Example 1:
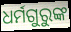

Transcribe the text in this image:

ଧର୍ମଗୁରୁଙ୍କ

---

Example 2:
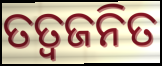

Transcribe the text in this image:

ତତ୍ଵଜନିତ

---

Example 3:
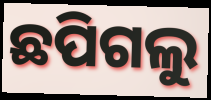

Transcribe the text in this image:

ଛପିଗଲୁ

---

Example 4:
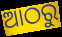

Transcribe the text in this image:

ଆଠରୁ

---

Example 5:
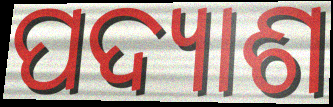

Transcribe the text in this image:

ପଦ୍ୟାଶ